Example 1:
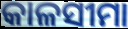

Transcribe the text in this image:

କାଳସୀମା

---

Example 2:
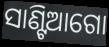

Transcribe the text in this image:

ସାଣ୍ଟିଆଗୋ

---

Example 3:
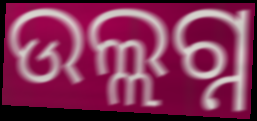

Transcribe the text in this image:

ଉଲ୍ଲଗ୍ନ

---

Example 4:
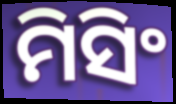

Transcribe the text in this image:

ମିସିଂ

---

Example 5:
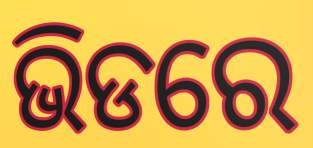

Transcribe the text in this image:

ଭିଡରେ